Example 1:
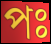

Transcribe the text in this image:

পঃ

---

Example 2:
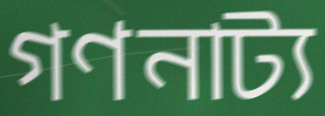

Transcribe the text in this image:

গণনাট্য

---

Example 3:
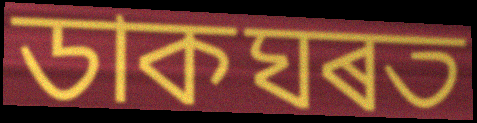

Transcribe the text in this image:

ডাকঘৰত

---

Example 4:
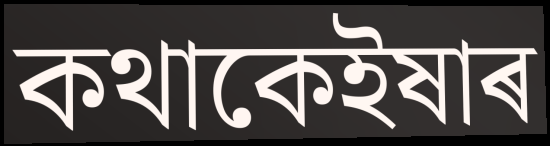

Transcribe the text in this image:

কথাকেইষাৰ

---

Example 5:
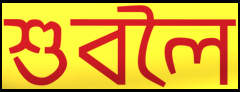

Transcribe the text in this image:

শুবলৈ